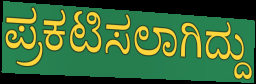
ಪ್ರಕಟಿಸಲಾಗಿದ್ದು